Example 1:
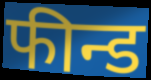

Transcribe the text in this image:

फीन्ड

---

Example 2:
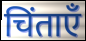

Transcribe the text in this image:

चिंताएँ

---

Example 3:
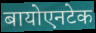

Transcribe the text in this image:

बायोएनटेक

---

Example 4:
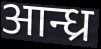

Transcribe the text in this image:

आन्ध्र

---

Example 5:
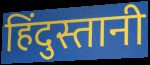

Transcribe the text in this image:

हिंदुस्तानी